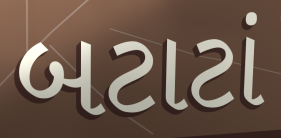
બટાટાં